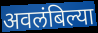
अवलंबिल्या